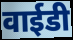
वाईडी